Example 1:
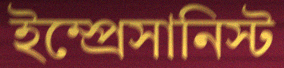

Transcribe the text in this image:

ইম্প্রেসানিস্ট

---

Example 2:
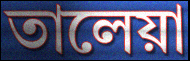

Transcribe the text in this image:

তালেয়া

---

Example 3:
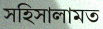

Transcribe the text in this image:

সহিসালামত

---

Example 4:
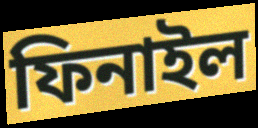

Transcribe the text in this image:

ফিনাইল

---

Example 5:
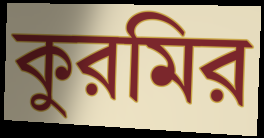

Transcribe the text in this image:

কুরমির